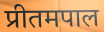
प्रीतमपाल